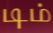
டிம்